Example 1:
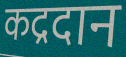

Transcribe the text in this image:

कद्रदान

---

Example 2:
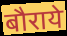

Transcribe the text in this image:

बौराये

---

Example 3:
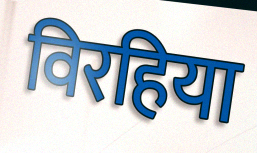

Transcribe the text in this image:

विरहिया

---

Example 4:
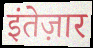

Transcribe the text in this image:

इंतेज़ार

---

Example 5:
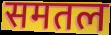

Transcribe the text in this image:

समतल